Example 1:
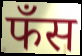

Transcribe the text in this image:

फँस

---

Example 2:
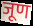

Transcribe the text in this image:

जूण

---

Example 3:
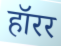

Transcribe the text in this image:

हॉरर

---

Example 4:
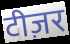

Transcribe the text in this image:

टीज़र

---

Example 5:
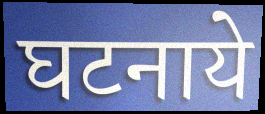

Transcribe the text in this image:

घटनाये